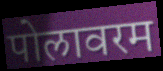
पोलावरम